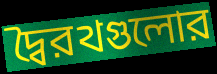
দ্বৈরথগুলোর